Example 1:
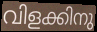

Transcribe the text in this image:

വിളക്കിനു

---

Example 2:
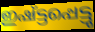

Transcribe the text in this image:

ഇഷ്ട്ടപ്പെട്ടു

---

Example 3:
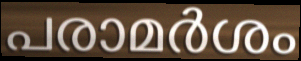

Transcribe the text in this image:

പരാമർശം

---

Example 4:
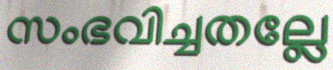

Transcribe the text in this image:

സംഭവിച്ചതല്ലേ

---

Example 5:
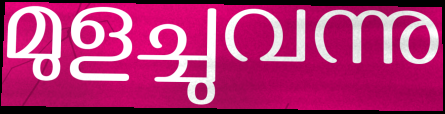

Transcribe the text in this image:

മുളച്ചുവന്നു